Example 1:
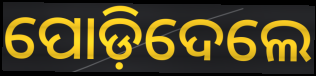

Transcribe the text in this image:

ପୋଡ଼ିଦେଲେ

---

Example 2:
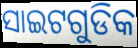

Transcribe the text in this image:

ସାଇଟଗୁଡିକ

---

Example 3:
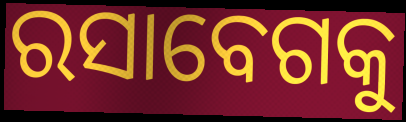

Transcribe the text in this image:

ରସାବେଗକୁ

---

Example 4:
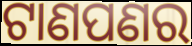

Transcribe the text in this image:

ଟାଣପଣର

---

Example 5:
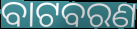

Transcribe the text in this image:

ବାଟବରଣ